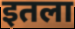
इतला